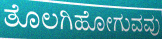
ತೊಲಗಿಹೋಗುವವು